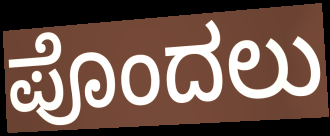
ಪೊಂದಲು